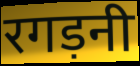
रगड़नी